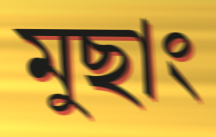
মুছাং